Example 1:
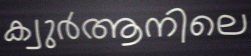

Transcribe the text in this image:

ക്വുർആനിലെ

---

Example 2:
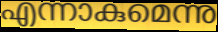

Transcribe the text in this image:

എന്നാകുമെന്നു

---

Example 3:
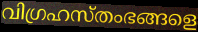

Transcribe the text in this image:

വിഗ്രഹസ്തംഭങ്ങളെ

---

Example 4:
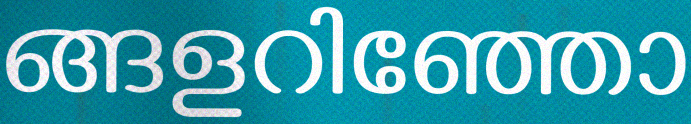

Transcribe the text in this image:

ങ്ങളറിഞ്ഞോ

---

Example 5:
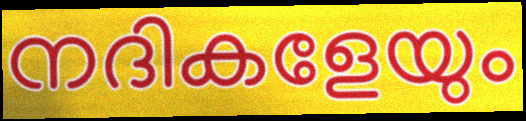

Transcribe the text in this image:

നദികളേയും